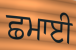
ਛਮਾਈ